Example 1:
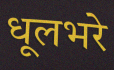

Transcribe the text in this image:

धूलभरे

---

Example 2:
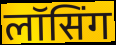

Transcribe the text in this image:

लॉसिंग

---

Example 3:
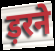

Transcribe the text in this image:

ड़रने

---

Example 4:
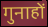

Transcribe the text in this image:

गुनाहों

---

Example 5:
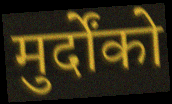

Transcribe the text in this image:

मुर्दोंको